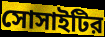
সোসাইটির